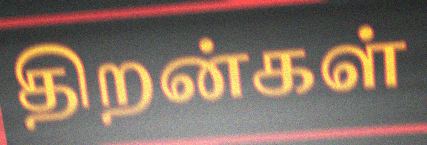
திறன்கள்